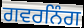
ਗਵਰਨਿੰਗ